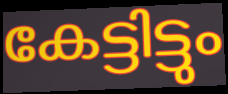
കേട്ടിട്ടും